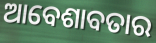
ଆବେଶାବତାର